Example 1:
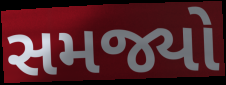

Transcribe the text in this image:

સમજ્યો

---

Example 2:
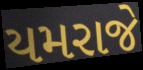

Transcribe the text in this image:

યમરાજે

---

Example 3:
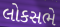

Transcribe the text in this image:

લોકસભે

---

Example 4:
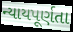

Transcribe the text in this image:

ન્યાયપૂર્ણતા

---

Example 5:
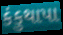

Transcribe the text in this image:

કંકુથાપા